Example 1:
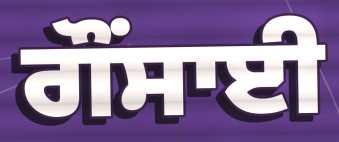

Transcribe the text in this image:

ਗੌਂਸਾਈ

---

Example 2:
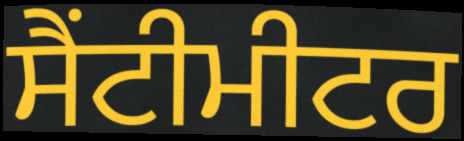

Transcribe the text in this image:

ਸੈਂਟੀਮੀਟਰ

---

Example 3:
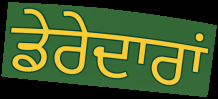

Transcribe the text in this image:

ਡੇਰੇਦਾਰਾਂ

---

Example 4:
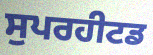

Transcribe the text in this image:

ਸੁਪਰਹੀਟਡ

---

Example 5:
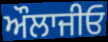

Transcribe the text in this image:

ਔਲਾਜੀਓ